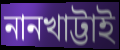
নানখাট্টাই